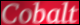
Cobalt